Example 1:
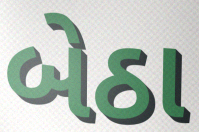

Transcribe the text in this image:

બેઠા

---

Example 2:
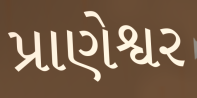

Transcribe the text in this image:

પ્રાણેશ્વર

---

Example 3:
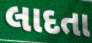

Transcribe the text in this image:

લાદતા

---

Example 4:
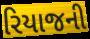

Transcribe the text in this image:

રિયાજની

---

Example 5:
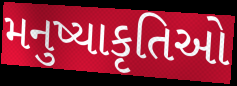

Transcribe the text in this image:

મનુષ્યાકૃતિઓ